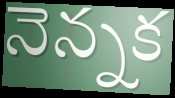
నెన్నక